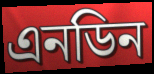
এনডিন